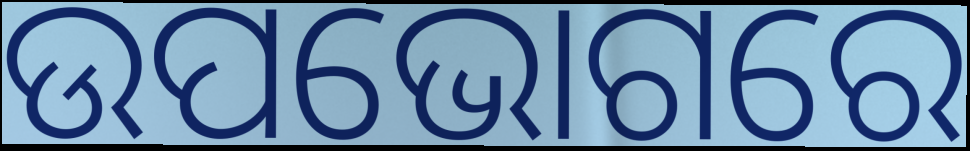
ଉପଭୋଗରେ